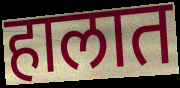
हालात